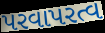
પરવાપરત્વ